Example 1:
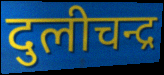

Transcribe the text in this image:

दुलीचन्द्र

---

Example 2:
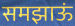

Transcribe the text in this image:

समझाऊं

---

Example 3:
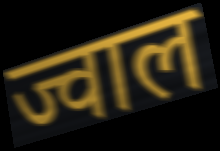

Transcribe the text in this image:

ज्वाल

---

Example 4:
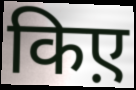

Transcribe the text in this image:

किए़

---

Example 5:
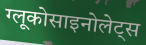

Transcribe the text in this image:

ग्लूकोसाइनोलेट्स